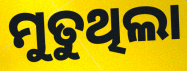
ମୁତୁଥିଲା